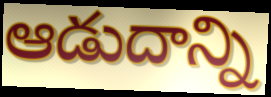
ఆడుదాన్ని